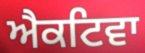
ਐਕਟਿਵਾ